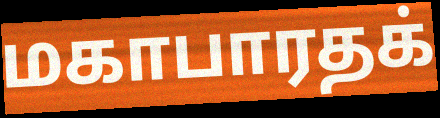
மகாபாரதக்